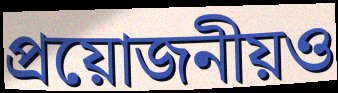
প্রয়োজনীয়ও